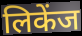
लिकेंज